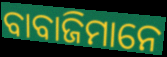
ବାବାଜିମାନେ